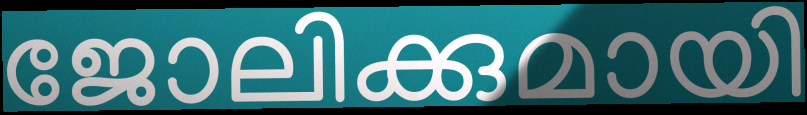
ജോലിക്കുമായി